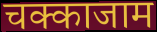
चक्काजाम